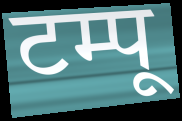
टम्पू